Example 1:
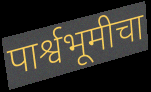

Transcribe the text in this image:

पार्श्वभूमीचा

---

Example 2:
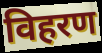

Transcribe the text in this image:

विहरण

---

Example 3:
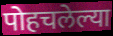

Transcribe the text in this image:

पोहचलेल्या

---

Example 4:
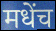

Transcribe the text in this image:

मधेंच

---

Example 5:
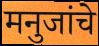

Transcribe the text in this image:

मनुजांचे